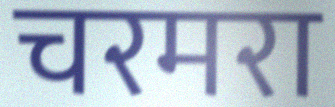
चरमरा